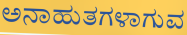
ಅನಾಹುತಗಳಾಗುವ